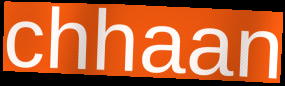
chhaan